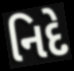
નિદે